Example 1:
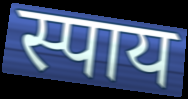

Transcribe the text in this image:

स्पाय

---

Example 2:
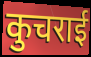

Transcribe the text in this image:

कुचराई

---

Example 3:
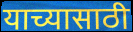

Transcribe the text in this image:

याच्यासाठी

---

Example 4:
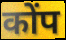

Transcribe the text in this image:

कोंप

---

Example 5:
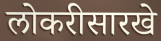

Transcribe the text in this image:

लोकरीसारखे